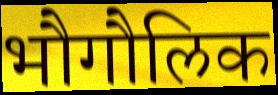
भौगौलिक